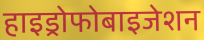
हाइड्रोफोबाइजेशन